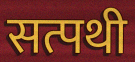
सत्पथी